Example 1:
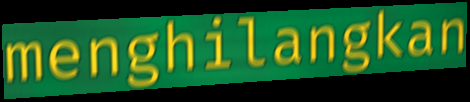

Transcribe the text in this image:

menghilangkan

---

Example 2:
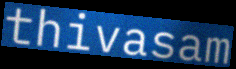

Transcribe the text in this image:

thivasam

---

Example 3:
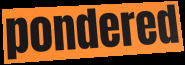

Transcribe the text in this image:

pondered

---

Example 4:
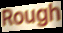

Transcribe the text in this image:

Rough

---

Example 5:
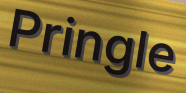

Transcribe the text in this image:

Pringle